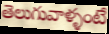
తెలుగువాళ్ళంటే